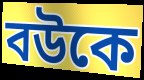
বউকে